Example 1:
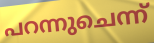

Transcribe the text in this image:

പറന്നുചെന്ന്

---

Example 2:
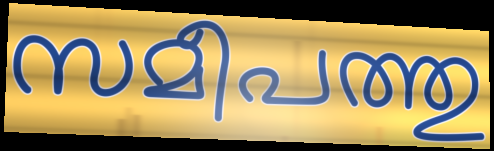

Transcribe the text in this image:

സമീപത്തു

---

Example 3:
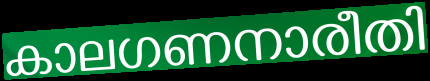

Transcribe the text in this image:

കാലഗണനാരീതി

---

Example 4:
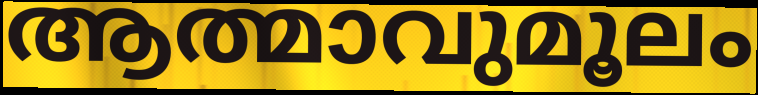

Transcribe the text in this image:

ആത്മാവുമൂലം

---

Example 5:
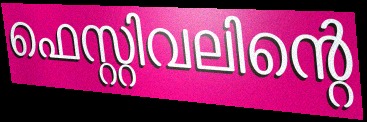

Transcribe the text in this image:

ഫെസ്റ്റിവലിന്റെ